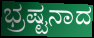
ಭ್ರಷ್ಟನಾದ